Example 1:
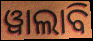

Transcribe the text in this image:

ୱାଲାବି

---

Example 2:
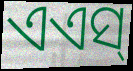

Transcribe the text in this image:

ଏଏସ୍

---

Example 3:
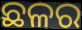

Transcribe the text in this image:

ଛଳର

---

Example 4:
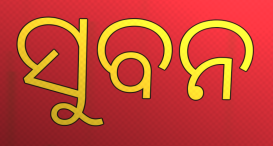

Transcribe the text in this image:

ସୁବନ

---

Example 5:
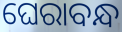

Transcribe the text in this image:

ଘେରାବନ୍ଧ